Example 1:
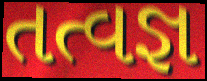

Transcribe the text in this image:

તત્વજ્ઞ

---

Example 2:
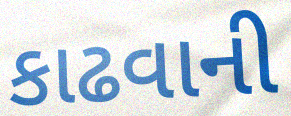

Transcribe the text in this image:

કાઢવાની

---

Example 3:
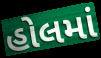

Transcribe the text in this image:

હોલમાં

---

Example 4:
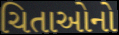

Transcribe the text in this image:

ચિતાઓનો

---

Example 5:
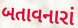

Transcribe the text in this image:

બતાવનારાં